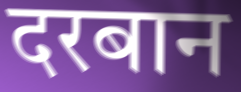
दरबान